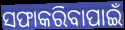
ସଫାକରିବାପାଇଁ